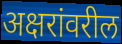
अक्षरांवरील